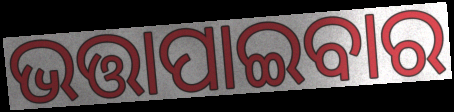
ଭତ୍ତାପାଇବାର